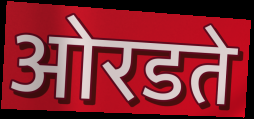
ओरडते